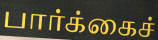
பார்க்கைச்